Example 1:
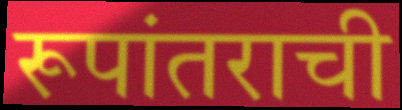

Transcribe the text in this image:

रूपांतराची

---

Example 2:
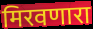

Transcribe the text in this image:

मिरवणारा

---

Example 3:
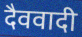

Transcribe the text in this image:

दैववादी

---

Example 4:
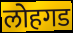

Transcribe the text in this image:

लोहगड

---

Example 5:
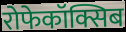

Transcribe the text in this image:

रोफेकॉक्सिब